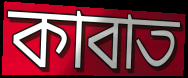
কাবাত